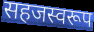
सहजस्वरूप